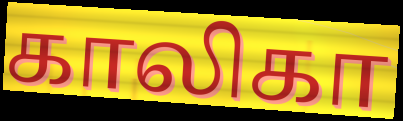
காலிகா